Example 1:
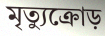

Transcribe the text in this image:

মৃত্যুক্রোড়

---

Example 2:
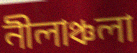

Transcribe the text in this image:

নীলাঞ্চলা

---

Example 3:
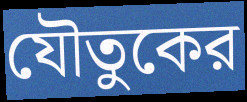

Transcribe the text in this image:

যৌতুকের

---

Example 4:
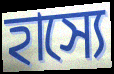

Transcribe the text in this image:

হাস্যে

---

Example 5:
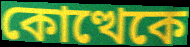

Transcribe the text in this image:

কোত্থেকে